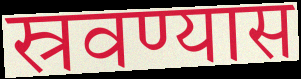
स्रवण्यास